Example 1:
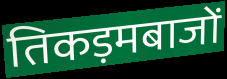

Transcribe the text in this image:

तिकड़मबाजों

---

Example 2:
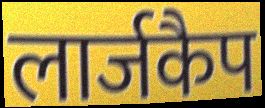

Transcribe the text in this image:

लार्जकैप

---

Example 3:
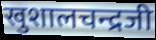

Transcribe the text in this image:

खुशालचन्द्रजी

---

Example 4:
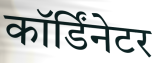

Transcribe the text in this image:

कॉर्डिंनेटर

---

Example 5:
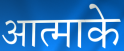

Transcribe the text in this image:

आत्माके